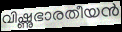
വിഷ്ണുഭാരതീയൻ